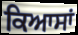
ਕਿਆਸਾਂ